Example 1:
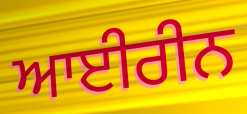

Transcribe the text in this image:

ਆਈਰੀਨ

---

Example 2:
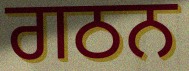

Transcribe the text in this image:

ਗਠਨ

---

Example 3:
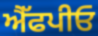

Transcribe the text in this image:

ਐੱਫਪੀਓ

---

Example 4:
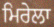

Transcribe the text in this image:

ਮਿਰੇਲਾ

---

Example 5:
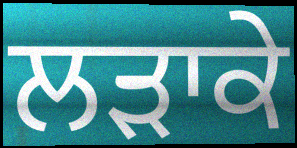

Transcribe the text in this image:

ਲੜਾਕੇ